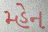
મ્હેન